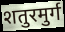
शतुरमुर्ग